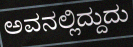
ಅವನಲ್ಲಿದ್ದುದು